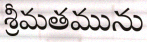
శ్రీమతమును